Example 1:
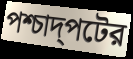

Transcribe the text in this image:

পশ্চাদ্পটের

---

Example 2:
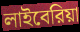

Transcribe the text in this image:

লাইবেরিয়া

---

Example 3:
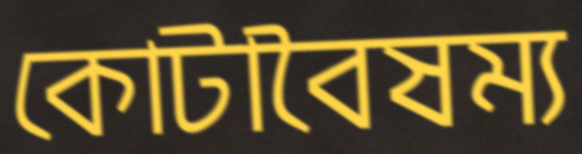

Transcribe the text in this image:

কোটাবৈষম্য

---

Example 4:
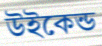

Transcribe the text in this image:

উইকেন্ড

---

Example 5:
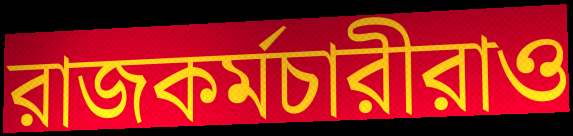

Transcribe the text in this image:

রাজকর্মচারীরাও